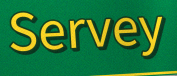
Servey